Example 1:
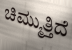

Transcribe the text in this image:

ಚಿಮ್ಮುತ್ತಿದೆ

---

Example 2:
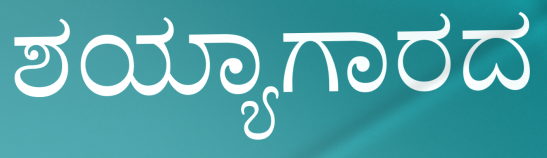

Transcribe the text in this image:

ಶಯ್ಯಾಗಾರದ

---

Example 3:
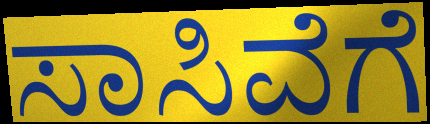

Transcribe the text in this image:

ಸಾಸಿವೆಗೆ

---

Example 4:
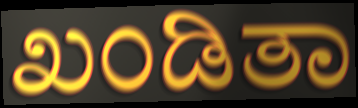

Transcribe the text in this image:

ಖಂಡಿತಾ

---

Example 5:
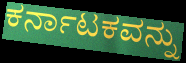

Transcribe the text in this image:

ಕರ್ನಾಟಕವನ್ನು